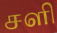
சளி